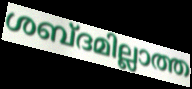
ശബ്ദമില്ലാത്ത